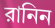
রানিন